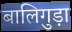
बालिगुड़ा